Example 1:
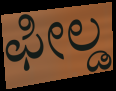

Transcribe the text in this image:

ಫೀಲ್ಡ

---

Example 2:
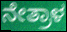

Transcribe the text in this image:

ನೇತ್ರಾಳ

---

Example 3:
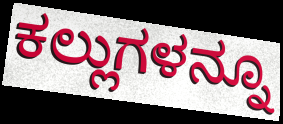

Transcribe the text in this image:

ಕಲ್ಲುಗಳನ್ನೂ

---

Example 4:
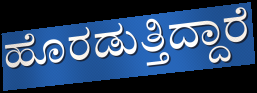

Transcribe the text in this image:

ಹೊರಡುತ್ತಿದ್ದಾರೆ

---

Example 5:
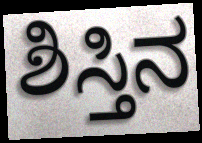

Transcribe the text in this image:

ಶಿಸ್ತಿನ